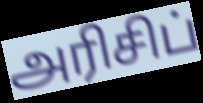
அரிசிப்